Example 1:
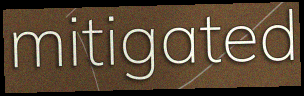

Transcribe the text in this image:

mitigated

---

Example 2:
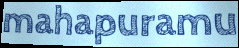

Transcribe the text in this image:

mahapuramu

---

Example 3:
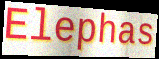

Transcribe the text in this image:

Elephas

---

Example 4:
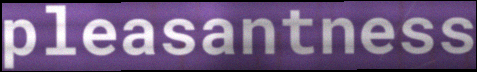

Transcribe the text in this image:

pleasantness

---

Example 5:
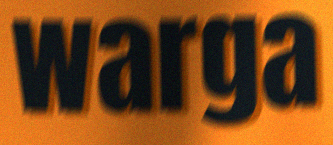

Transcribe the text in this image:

warga